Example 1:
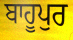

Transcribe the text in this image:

ਬਾਹੂਪੁਰ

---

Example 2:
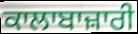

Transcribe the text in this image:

ਕਾਲਾਬਾਜ਼ਾਰੀ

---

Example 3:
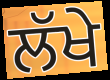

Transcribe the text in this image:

ਲੱਖੇ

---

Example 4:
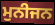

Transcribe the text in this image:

ਮੁਨੀਜਨ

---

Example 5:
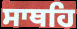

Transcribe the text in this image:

ਸਾਥਹਿ